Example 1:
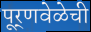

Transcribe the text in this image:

पूर्णवेळेची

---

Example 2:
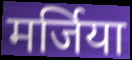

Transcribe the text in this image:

मर्जिया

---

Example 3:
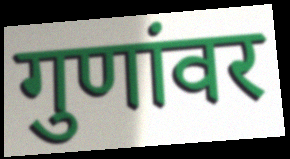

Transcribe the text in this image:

गुणांवर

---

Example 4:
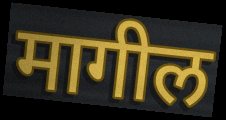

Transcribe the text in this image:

मागील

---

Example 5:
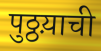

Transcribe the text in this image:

पुठ्ठय़ाची